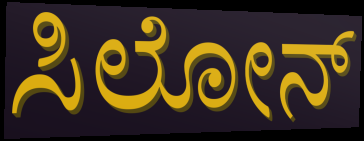
ಸಿಲೋನ್